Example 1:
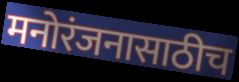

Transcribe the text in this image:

मनोरंजनासाठीच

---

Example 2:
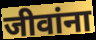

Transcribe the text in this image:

जीवांना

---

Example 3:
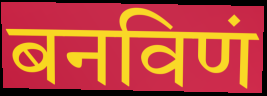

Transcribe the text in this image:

बनविणं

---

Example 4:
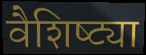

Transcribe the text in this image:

वैशिष्ट्या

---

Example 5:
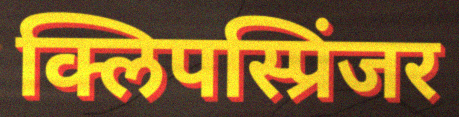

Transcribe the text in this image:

क्लिपस्प्रिंजर